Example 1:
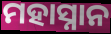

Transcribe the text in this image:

ମହାସ୍ନାନ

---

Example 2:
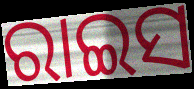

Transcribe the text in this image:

ରାଇସ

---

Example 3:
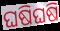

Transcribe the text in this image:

ଘଷିଘଷି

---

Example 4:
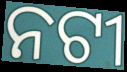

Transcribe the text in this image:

ନଟୀ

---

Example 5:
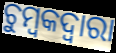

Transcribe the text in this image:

ଚୁମ୍ବକଦ୍ବାରା